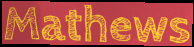
Mathews